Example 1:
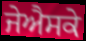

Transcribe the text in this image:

ਜੇਐਸਕੇ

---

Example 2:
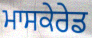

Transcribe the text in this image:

ਮਾਸਕੇਰੇਡ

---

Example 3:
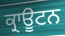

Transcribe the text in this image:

ਕ੍ਰਾਊਟਨ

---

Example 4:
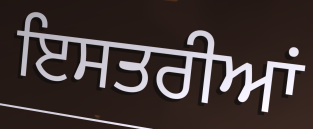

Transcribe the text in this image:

ਇਸਤਰੀਆਂ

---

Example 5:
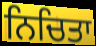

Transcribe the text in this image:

ਨਿਚਿਤਾ